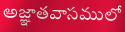
అజ్ఞాతవాసములో